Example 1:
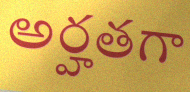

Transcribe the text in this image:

అర్హతగా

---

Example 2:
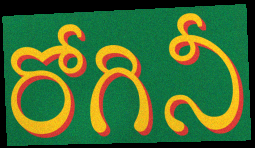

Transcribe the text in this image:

రోగినీ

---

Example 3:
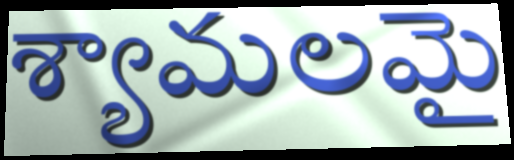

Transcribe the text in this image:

శ్యామలమై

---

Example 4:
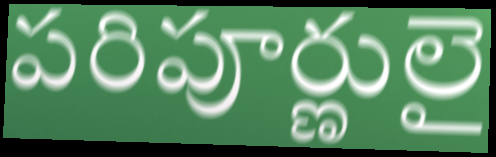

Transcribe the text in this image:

పరిపూర్ణులై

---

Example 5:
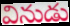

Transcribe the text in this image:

వినుడు